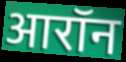
आरॉन